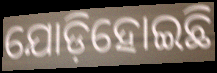
ଯୋଡ଼ିହୋଇଛି